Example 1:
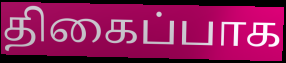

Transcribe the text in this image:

திகைப்பாக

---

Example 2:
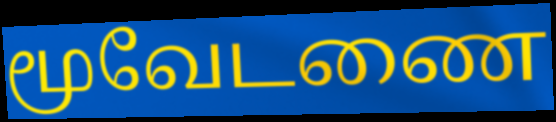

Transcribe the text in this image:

மூவேடணை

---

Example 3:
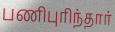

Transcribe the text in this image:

பணிபுரிந்தார்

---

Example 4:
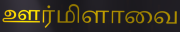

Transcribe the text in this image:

ஊர்மிளாவை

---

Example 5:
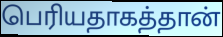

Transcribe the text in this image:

பெரியதாகத்தான்